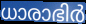
ധാരാഭിർ